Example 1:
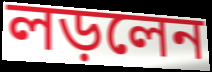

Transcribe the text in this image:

লড়লেন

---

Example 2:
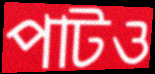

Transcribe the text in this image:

পাটও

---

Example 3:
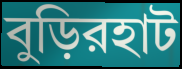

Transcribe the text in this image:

বুড়িরহাট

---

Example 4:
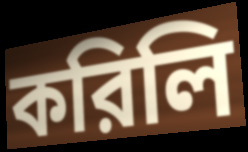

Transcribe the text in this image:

করিলি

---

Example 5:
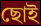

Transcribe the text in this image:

ছোই